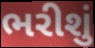
ભરીશું